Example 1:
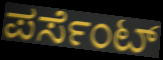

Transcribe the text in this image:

ಪರ್ಸೆಂಟ್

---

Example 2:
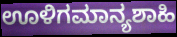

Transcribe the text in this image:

ಊಳಿಗಮಾನ್ಯಶಾಹಿ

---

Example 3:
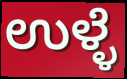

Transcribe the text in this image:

ಉಳ್ಳೆ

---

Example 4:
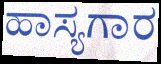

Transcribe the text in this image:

ಹಾಸ್ಯಗಾರ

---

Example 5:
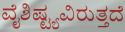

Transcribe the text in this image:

ವೈಶಿಷ್ಟ್ಯವಿರುತ್ತದೆ